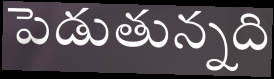
పెడుతున్నది